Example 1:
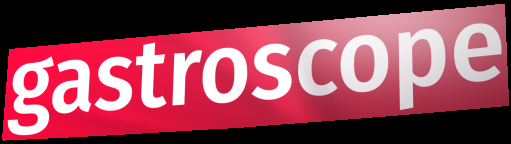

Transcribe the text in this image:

gastroscope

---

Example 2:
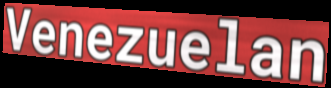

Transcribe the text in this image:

Venezuelan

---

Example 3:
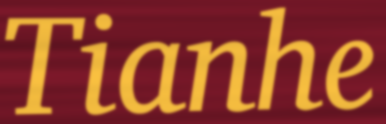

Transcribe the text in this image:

Tianhe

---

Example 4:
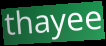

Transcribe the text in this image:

thayee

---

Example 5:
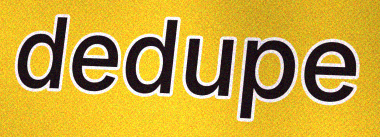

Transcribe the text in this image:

dedupe